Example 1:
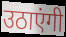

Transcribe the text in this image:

उठाएंगी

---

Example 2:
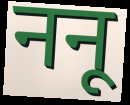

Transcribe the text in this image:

ननू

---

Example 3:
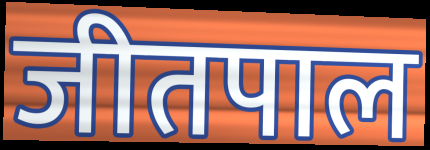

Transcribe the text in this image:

जीतपाल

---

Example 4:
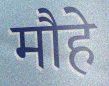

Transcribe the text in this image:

मौहे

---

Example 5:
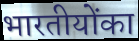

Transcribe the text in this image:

भारतीयोंका